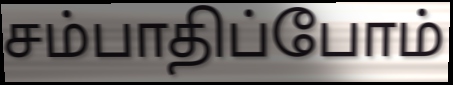
சம்பாதிப்போம்